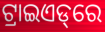
ଟ୍ରାଇଏଡ୍‌ରେ